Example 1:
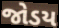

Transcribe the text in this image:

જોડય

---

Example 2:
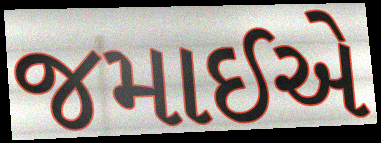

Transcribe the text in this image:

જમાઈએ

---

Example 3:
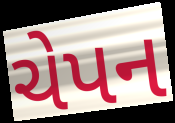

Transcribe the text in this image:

ચેપન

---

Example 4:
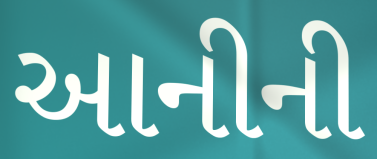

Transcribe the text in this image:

આનીની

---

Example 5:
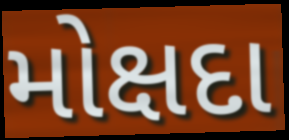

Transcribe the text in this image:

મોક્ષદા